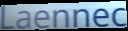
Laennec